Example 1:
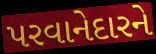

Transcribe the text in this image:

પરવાનેદારને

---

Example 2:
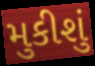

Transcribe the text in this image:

મુકીશું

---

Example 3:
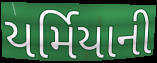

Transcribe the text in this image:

યર્મિયાની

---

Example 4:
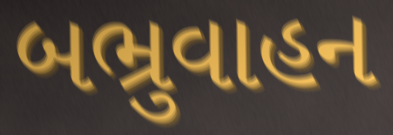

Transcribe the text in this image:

બભ્રુવાહન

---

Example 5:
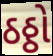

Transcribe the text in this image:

ઠઠ્ઠો